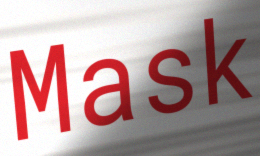
Mask